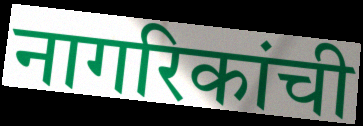
नागरिकांची